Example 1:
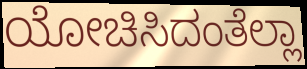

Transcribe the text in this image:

ಯೋಚಿಸಿದಂತೆಲ್ಲಾ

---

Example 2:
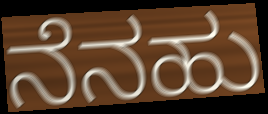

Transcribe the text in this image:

ನೆನಹು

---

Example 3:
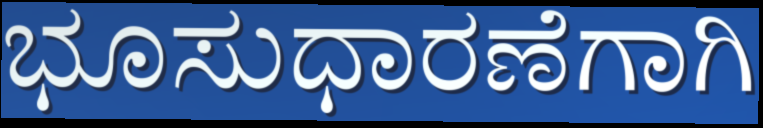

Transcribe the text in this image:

ಭೂಸುಧಾರಣೆಗಾಗಿ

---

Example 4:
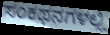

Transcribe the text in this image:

ಸಂಕಥನಗಳಲ್ಲಿ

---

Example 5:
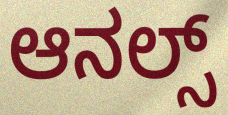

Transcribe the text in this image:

ಆನಲ್ಸ್